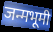
जन्मभूमी